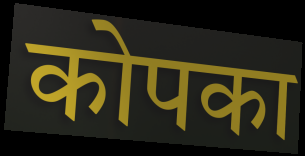
कोपका